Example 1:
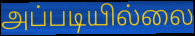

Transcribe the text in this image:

அப்படியில்லை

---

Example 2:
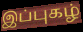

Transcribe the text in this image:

இப்புகழ்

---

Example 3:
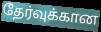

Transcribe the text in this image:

தேர்வுக்கான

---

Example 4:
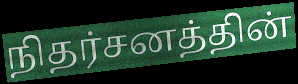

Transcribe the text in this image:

நிதர்சனத்தின்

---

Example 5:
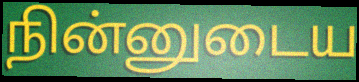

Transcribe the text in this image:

நின்னுடைய